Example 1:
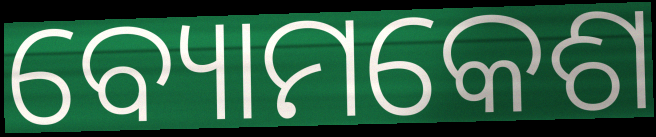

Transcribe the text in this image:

ବ୍ୟୋମକେଶ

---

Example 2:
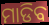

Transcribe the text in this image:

ମାଡିବ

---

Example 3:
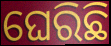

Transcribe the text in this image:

ଘେରିଛି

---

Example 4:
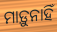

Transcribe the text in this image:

ମାଡ଼ୁନାହିଁ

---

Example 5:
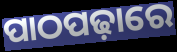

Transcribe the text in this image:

ପାଠପଢ଼ାରେ